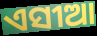
ଏସୀଆ